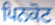
ਪਿਨਕੋਟ